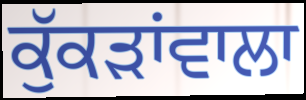
ਕੁੱਕੜਾਂਵਾਲਾ